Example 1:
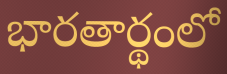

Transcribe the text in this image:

భారతార్థంలో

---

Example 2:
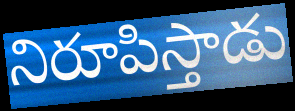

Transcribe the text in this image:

నిరూపిస్తాడు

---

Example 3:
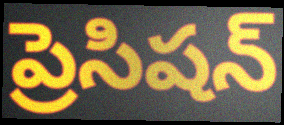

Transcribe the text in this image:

ప్రెసిషన్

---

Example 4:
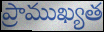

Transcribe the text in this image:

ప్రాముఖ్యత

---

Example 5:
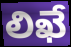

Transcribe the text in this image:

లిఖే